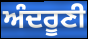
ਅੰਦਰੂਣੀ